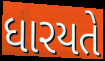
ધારયતે